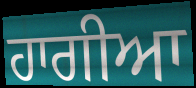
ਹਾਗੀਆ